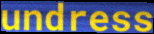
undress